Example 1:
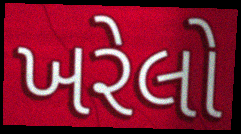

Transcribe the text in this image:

ખરેલો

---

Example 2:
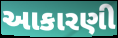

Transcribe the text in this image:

આકારણી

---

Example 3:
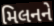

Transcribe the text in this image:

મિલનને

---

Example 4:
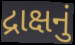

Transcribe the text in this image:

દ્રાક્ષનું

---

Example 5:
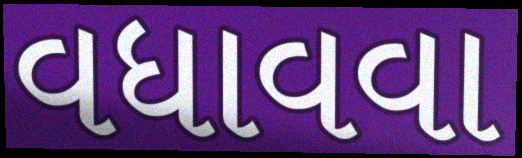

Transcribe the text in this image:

વધાવવા